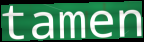
tamen